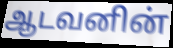
ஆடவனின்